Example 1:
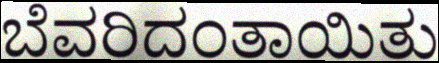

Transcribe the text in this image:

ಬೆವರಿದಂತಾಯಿತು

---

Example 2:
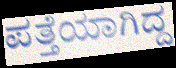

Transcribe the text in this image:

ಪತ್ತೆಯಾಗಿದ್ದ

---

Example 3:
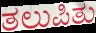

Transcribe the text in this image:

ತಲುಪಿತು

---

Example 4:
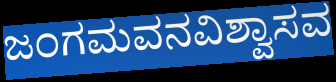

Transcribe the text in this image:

ಜಂಗಮವನವಿಶ್ವಾಸವ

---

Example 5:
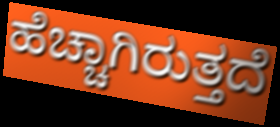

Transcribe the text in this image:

ಹೆಚ್ಚಾಗಿರುತ್ತದೆ